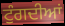
ਟੁੰਗਦੀਆਂ